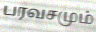
பரவசமும்